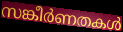
സങ്കീർണതകൾ